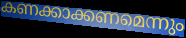
കണക്കാക്കണമെന്നും